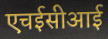
एचईसीआई